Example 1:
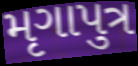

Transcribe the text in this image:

મૃગાપુત્ર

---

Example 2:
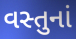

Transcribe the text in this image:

વસ્તુનાં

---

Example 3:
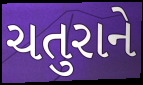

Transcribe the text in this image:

ચતુરાને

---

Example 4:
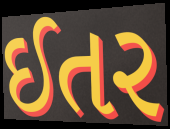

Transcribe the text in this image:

ઈતર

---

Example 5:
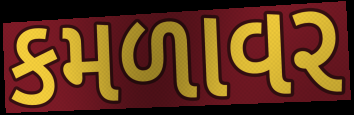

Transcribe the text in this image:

કમળાવર